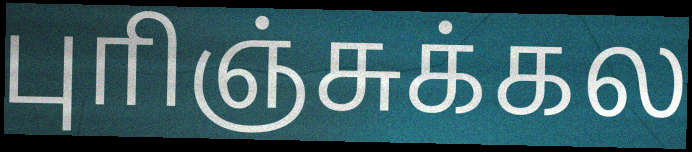
புரிஞ்சுக்கல